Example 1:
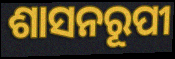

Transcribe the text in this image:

ଶାସନରୂପୀ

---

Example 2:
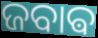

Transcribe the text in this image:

ଜବାଵ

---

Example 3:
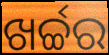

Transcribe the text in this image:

ଖର୍ଚ୍ଚର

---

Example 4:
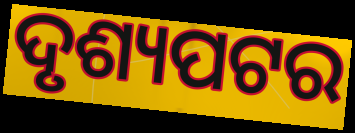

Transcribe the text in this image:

ଦୃଶ୍ୟପଟର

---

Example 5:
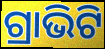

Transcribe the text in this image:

ଗ୍ରାଭିଟି